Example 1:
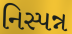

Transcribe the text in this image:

નિસ્પન્ન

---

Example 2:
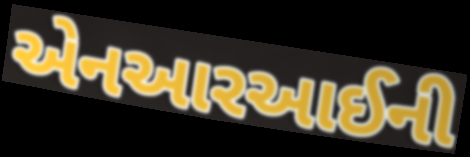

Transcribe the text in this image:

એનઆરઆઈની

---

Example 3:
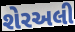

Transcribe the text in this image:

શેરઅલી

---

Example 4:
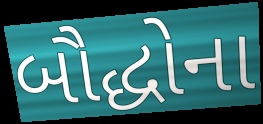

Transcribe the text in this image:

બૌદ્ધોના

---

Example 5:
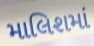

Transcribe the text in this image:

માલિશમાં